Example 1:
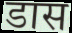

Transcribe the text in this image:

डास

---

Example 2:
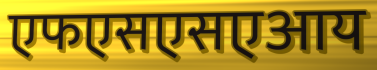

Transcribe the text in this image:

एफएसएसएआय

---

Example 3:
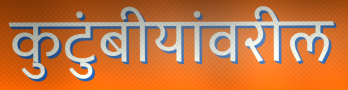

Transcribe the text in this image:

कुटुंबीयांवरील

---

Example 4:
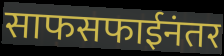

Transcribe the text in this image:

साफसफाईनंतर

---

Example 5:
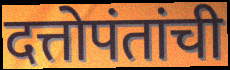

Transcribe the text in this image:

दत्तोपंतांची